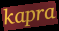
kapra